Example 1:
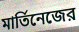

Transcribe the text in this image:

মার্তিনেজের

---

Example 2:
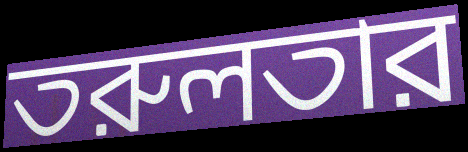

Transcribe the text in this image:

তরুলতার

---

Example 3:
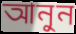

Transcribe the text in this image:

আনুন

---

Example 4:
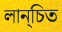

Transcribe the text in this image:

লান্চিত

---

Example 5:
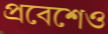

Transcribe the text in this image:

প্রবেশেও